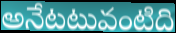
అనేటటువంటిది